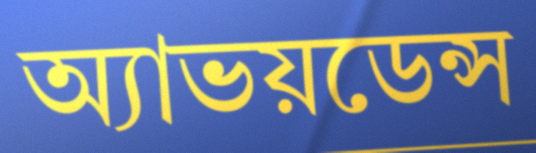
অ্যাভয়ডেন্স